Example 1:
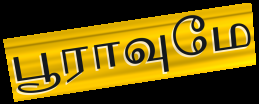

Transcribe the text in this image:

பூராவுமே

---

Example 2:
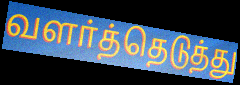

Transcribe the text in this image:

வளர்த்தெடுத்து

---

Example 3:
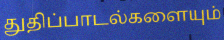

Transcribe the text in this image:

துதிப்பாடல்களையும்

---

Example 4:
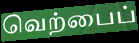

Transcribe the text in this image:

வெற்பைப்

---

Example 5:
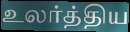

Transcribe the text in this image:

உலர்த்திய